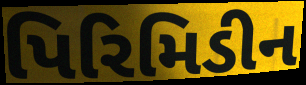
પિરિમિડીન